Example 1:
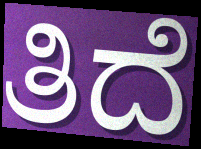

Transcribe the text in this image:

ತಿದೆ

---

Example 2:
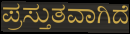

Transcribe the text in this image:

ಪ್ರಸ್ತುತವಾಗಿದೆ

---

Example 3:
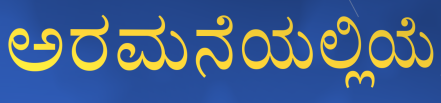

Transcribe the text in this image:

ಅರಮನೆಯಲ್ಲಿಯೆ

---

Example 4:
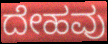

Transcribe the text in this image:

ದೇಹವು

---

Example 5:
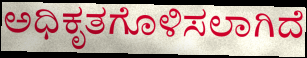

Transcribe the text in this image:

ಅಧಿಕೃತಗೊಳಿಸಲಾಗಿದೆ